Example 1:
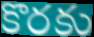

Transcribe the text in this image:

కొరకు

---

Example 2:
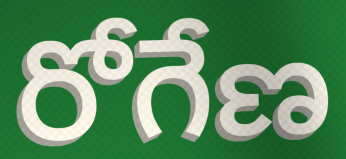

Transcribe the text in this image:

రోగేణ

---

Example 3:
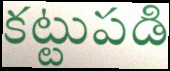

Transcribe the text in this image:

కట్టుపడి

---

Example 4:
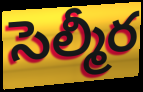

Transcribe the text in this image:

సెల్మీర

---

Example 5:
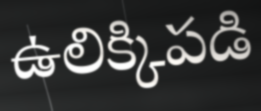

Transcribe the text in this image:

ఉలిక్కిపడి